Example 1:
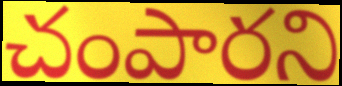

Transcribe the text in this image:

చంపారని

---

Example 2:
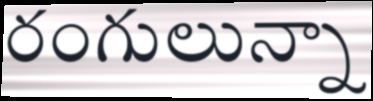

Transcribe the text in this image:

రంగులున్నా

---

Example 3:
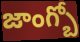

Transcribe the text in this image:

జాంగ్బో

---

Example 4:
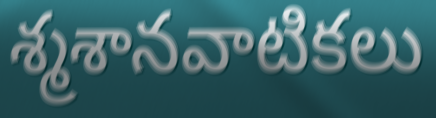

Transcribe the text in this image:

శ్మశానవాటికలు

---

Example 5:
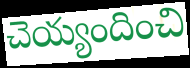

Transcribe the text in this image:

చెయ్యందించి